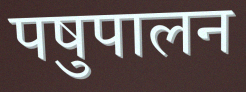
पषुपालन